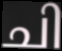
ചി